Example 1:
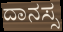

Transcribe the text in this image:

ದಾನಸ್ಸ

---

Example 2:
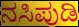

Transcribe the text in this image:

ನಸಿಪುಡಿ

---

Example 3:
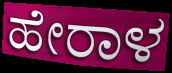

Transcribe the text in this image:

ಹೇರಾಳ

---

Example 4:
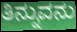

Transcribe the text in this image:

ತಿನ್ನುವನು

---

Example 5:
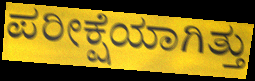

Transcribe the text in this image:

ಪರೀಕ್ಷೆಯಾಗಿತ್ತು